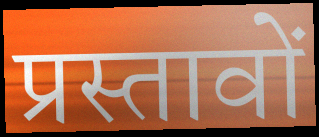
प्रस्तावों